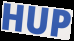
HUP